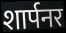
शार्पनर